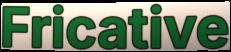
Fricative